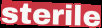
sterile